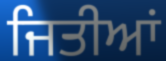
ਜਿਤੀਆਂ